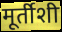
मूर्तीशी